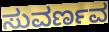
ಸುವರ್ಣವ